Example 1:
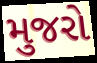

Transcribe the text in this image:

મુજરો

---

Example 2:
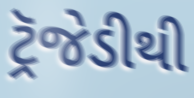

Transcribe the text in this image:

ટ્રૅજેડીથી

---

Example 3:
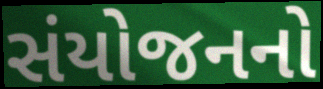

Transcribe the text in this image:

સંયોજનનો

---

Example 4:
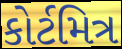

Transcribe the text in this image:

કોર્ટમિત્ર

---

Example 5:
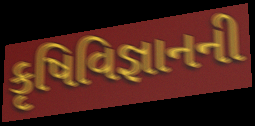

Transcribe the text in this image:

કૃષિવિજ્ઞાનની